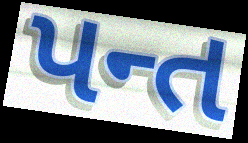
પન્ત